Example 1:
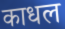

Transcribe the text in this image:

काधल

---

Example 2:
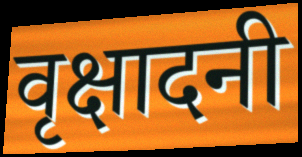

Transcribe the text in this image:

वृक्षादनी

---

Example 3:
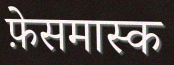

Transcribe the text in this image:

फ़ेसमास्क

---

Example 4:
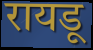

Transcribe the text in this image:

रायडू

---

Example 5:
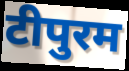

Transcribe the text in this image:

टीपुरम